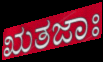
ಋತಜಾಃ